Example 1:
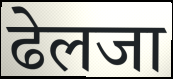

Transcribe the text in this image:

ढेलजा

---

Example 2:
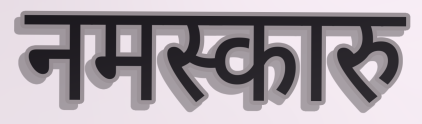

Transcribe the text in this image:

नमस्कारु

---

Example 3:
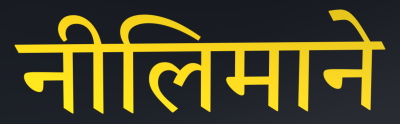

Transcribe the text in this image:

नीलिमाने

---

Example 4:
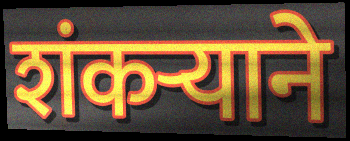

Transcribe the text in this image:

शंकर्‍याने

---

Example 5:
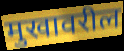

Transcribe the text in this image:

मुखावरील